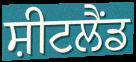
ਸ਼ੀਟਲੈਂਡ